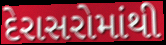
દેરાસરોમાંથી